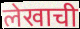
लेखाची